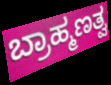
ಬ್ರಾಹ್ಮಣತ್ವ